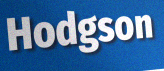
Hodgson